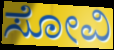
ಸೋವಿ